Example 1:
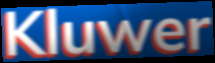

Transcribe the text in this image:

Kluwer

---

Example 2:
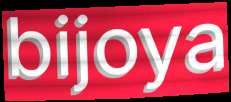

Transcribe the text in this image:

bijoya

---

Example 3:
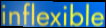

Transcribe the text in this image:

inflexible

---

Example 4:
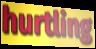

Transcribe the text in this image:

hurtling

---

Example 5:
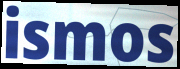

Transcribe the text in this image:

ismos